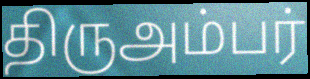
திருஅம்பர்